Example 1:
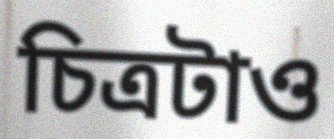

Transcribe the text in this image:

চিত্রটাও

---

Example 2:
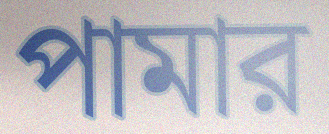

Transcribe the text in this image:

পামার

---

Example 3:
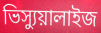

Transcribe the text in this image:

ভিস্যুয়ালাইজ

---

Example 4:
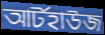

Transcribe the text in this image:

আর্টহাউজ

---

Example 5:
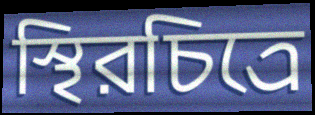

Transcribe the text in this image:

স্থিরচিত্রে